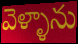
వెళ్ళాను